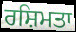
ਰਸ਼ਿਮਤਾ